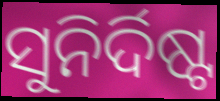
ସୁନିର୍ଦିଷ୍ଟ